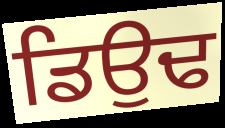
ਡਿਉਢ